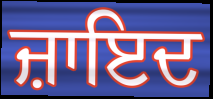
ਜ਼ਾਇਦ